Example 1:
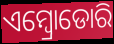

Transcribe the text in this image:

ଏମ୍ବ୍ରୋଡୋରି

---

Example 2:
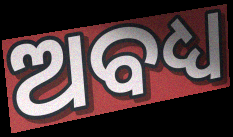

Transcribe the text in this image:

ଅବଧ୍ୟ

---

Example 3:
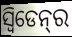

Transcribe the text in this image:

ସ୍ୱିଡେନ୍‍ର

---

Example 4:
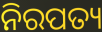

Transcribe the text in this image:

ନିରପତ୍ୟ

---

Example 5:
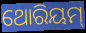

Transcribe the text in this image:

ଥୋରିୟମ୍